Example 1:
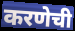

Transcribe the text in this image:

करणेची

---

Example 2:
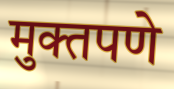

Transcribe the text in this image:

मुक्तपणे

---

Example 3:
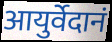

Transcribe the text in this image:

आयुर्वेदानं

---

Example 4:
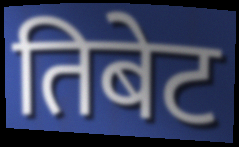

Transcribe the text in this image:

तिबेट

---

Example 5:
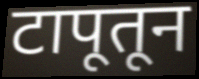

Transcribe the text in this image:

टापूतून